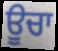
ਊਚਾ